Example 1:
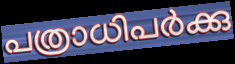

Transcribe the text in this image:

പത്രാധിപർക്കു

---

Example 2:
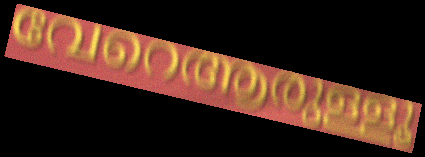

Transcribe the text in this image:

വേറെആരുള്ളൂ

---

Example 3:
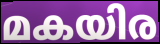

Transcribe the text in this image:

മകയിര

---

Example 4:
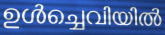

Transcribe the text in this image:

ഉൾച്ചെവിയിൽ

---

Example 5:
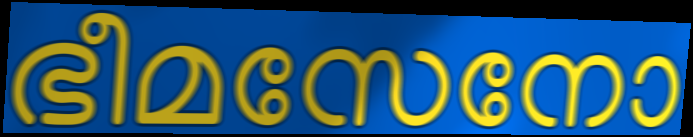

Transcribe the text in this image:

ഭീമസേനോ